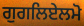
ਗੁਗਲਿਏਲਮੋ